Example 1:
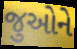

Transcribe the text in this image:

જુઓને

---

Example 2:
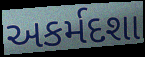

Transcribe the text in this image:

અકર્મદશા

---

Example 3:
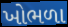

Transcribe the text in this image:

ખોભળા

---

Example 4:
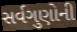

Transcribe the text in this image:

સર્વગુણોની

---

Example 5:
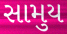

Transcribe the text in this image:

સામુય